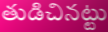
తుడిచినట్టు